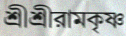
শ্রীশ্রীরামকৃষ্ণ